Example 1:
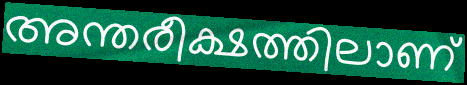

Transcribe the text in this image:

അന്തരീക്ഷത്തിലാണ്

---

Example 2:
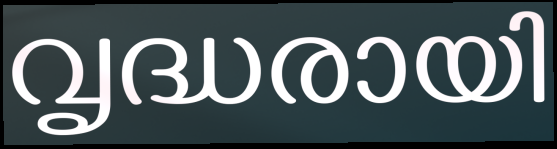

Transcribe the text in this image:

വൃദ്ധരായി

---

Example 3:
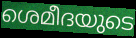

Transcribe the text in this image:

ശെമീദയുടെ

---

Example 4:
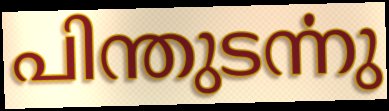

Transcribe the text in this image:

പിന്തുടൎന്നു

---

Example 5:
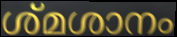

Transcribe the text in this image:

ശ്മശാനം